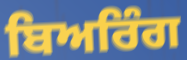
ਬਿਅਰਿੰਗ